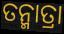
ତନ୍ମାତ୍ରା